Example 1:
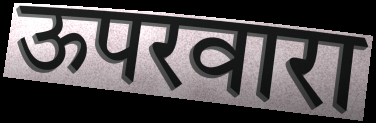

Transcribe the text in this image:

ऊपरवारा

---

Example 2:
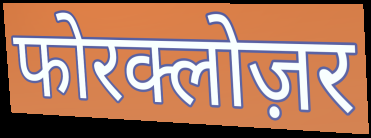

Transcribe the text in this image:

फोरक्लोज़र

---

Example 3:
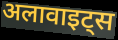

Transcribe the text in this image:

अलावाइट्स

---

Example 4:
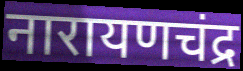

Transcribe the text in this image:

नारायणचंद्र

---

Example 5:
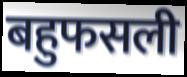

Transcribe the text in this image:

बहुफसली